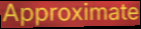
Approximate